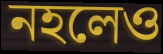
নহলেও